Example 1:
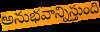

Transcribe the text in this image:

అనుభవాన్నిస్తుంది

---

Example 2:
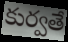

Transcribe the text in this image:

కుర్వతే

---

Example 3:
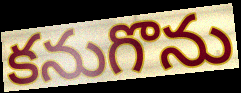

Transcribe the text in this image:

కనుగొను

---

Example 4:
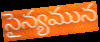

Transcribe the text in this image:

సైన్యమున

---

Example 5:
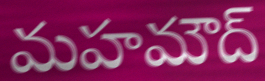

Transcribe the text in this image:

మహమౌద్